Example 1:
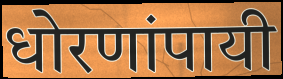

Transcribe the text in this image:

धोरणांपायी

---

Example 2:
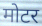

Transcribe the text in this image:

मोटर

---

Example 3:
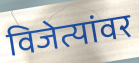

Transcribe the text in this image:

विजेत्यांवर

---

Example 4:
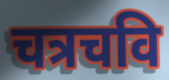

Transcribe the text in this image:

चत्रचवि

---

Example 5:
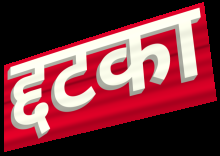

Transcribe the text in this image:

द्दटका